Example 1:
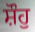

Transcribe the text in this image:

ਸ਼ੌਹੁ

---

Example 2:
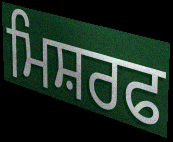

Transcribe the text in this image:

ਮਿਸ਼ਰਫ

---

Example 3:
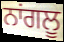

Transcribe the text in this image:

ਨਾਂਗਲੂ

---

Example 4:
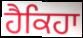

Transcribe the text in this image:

ਹੈਕਿਹਾ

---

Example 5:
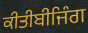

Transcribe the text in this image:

ਕੀਤੀਬੀਜਿੰਗ